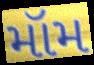
મૉમ